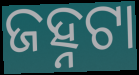
ଜହ୍ନଟା